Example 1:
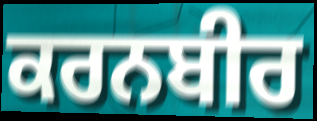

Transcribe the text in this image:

ਕਰਨਬੀਰ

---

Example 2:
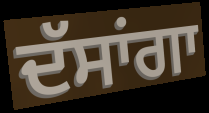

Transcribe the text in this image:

ਦੱਸਾਂਗਾ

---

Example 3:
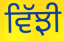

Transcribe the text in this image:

ਵਿੱਝੀ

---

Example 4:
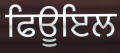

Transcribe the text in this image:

ਫਿਊਇਲ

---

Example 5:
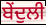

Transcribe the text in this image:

ਬੇਂਦੁਲੀ